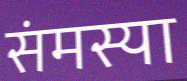
संमस्या